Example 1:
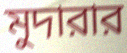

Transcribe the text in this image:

মুদারার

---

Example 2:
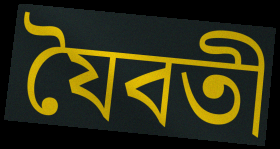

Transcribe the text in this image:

যৈবতী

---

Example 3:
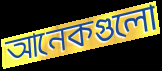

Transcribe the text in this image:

আনেকগুলো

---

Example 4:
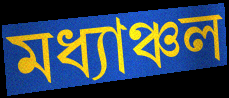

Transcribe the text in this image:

মধ্যাঞ্চল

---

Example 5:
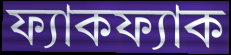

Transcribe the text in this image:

ফ্যাকফ্যাক